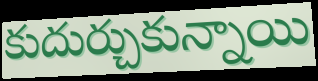
కుదుర్చుకున్నాయి